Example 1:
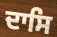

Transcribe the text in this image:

ਦਾਸਿ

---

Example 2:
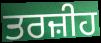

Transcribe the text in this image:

ਤਰਜ਼ੀਹ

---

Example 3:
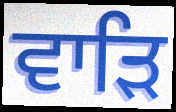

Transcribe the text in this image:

ਵਾੜਿ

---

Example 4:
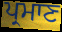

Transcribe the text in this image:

ਪ੍ਰਮਾਣ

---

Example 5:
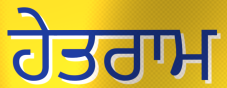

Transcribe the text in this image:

ਹੇਤਰਾਮ